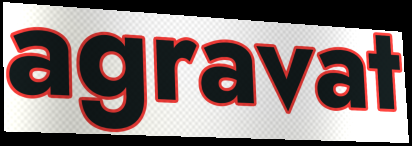
agravat